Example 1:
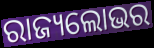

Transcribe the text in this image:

ରାଜ୍ୟଲୋଭର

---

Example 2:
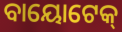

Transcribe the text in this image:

ବାୟୋଟେକ୍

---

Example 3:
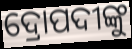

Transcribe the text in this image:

ଦ୍ରୋପଦୀଙ୍କୁ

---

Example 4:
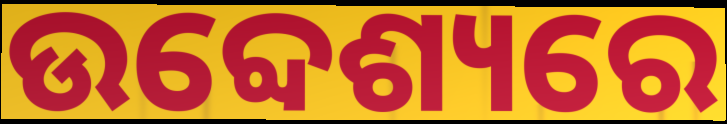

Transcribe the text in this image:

ଉବ୍ଦେଶ୍ୟରେ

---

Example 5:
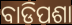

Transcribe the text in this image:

ବାଡିପଶା